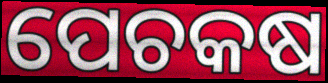
ପେଚକଷ